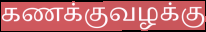
கணக்குவழக்கு